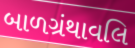
બાળગ્રંથાવલિ